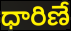
ధారిణే